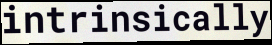
intrinsically